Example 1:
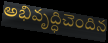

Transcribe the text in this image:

అభివృద్ధిచెందిన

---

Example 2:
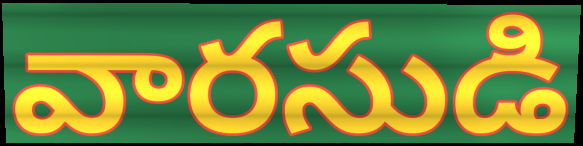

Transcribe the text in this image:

వారసుడి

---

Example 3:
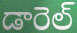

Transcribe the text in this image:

డారెల్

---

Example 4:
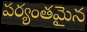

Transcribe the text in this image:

పర్యంతమైన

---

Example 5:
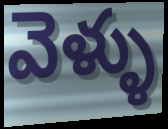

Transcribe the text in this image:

వెళ్ళు